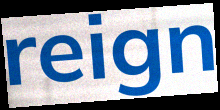
reign